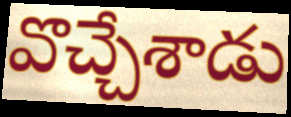
వొచ్చేశాడు